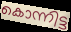
കൊന്നിട്ട